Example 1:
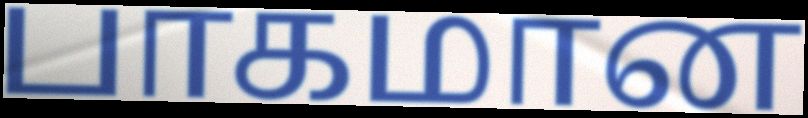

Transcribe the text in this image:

பாகமான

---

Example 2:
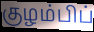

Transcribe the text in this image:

குழம்பிப்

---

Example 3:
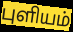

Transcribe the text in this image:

புளியம்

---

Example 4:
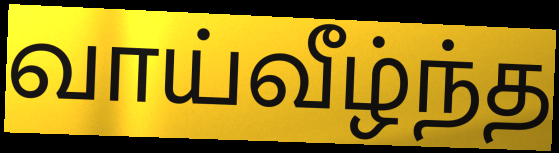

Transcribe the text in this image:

வாய்வீழ்ந்த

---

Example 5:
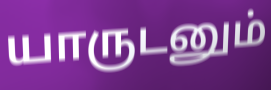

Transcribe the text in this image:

யாருடனும்